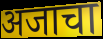
अजाचा